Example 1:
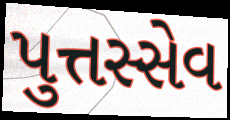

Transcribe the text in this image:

પુત્તસ્સેવ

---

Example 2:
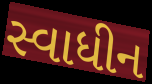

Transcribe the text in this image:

સ્વાધીન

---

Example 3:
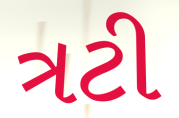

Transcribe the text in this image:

ત્રટી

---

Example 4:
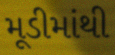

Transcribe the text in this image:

મૂડીમાંથી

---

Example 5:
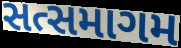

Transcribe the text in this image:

સત્સમાગમ